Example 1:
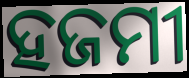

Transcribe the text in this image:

ହଜମୀ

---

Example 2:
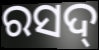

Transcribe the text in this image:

ରସଦ୍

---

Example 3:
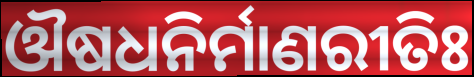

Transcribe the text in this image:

ଔଷଧନିର୍ମାଣରୀତିଃ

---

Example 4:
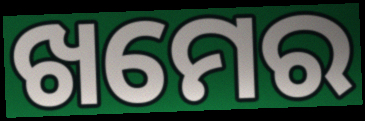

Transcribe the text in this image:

ଖମେର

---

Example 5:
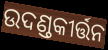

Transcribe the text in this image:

ଉଦଣ୍ଡକୀର୍ତ୍ତନ